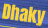
Dhaky